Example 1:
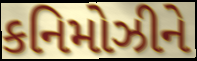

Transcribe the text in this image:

કનિમોઝીને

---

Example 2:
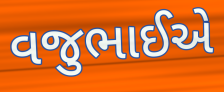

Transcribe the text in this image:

વજુભાઈએ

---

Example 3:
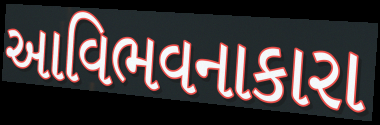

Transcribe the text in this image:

આવિભવનાકારા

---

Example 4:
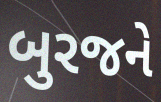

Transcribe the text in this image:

બુરજને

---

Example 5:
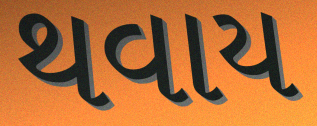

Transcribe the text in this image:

થવાય